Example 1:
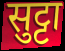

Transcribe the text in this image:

सुट्टा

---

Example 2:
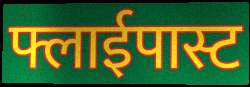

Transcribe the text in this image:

फ्लाईपास्ट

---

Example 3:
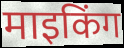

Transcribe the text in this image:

माइकिंग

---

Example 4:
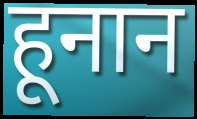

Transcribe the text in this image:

हूनान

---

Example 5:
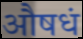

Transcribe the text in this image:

औषधं